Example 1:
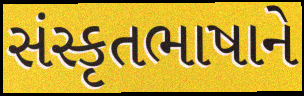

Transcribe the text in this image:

સંસ્કૃતભાષાને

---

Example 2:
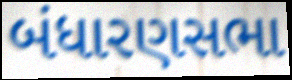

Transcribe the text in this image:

બંધારણસભા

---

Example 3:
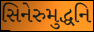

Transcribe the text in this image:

સિનેરુમુદ્ધનિ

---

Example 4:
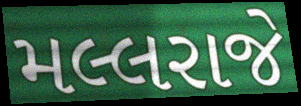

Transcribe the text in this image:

મલ્લરાજે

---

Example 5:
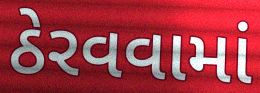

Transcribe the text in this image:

ઠેરવવામાં